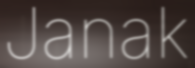
Janak